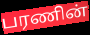
பரணின்